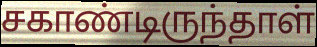
சகாண்டிருந்தாள்